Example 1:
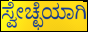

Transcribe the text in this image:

ಸ್ವೇಚ್ಛೆಯಾಗಿ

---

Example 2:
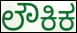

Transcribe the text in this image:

ಲೌಕಿಕ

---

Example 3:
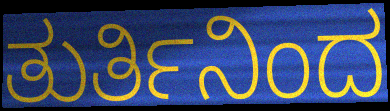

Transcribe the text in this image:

ತುರ್ತಿನಿಂದ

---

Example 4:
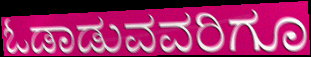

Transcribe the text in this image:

ಓಡಾಡುವವರಿಗೂ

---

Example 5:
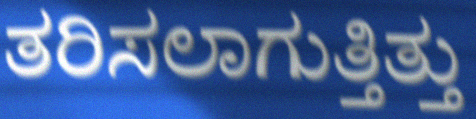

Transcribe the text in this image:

ತರಿಸಲಾಗುತ್ತಿತ್ತು